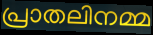
പ്രാതലിനമ്മ